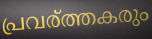
പ്രവര്ത്തകരും